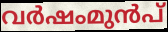
വർഷംമുൻപ്